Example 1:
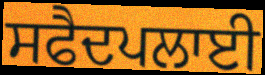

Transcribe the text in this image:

ਸਫੈਦਪਲਾਈ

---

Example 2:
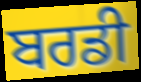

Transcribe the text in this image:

ਬਰਡੀ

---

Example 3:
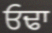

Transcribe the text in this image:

ਓਢਾ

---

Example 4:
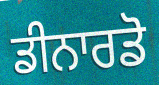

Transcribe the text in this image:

ਡੀਨਾਰਡੋ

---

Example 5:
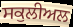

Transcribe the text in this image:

ਸਕੁਲੀਅਲ